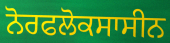
ਨੋਰਫਲੋਕਸਾਸੀਨ